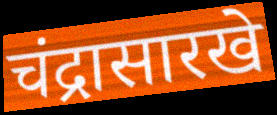
चंद्रासारखे